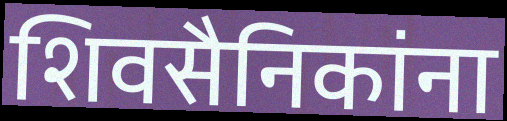
शिवसैनिकांना